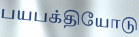
பயபக்தியோடு